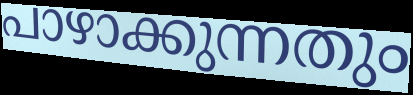
പാഴാക്കുന്നതും